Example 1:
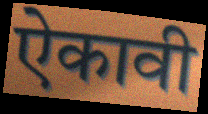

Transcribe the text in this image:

ऐकावी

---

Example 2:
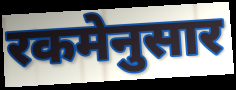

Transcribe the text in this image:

रकमेनुसार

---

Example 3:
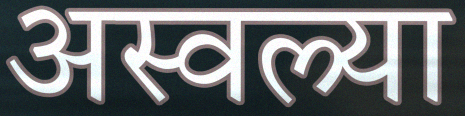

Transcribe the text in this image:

अस्वल्या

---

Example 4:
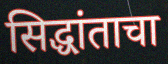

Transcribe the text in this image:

सिद्धांताचा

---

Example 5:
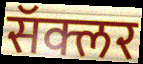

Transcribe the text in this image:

सॅक्लर